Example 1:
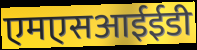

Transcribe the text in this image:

एमएसआईईडी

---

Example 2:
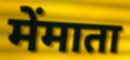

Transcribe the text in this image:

मेंमाता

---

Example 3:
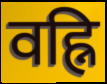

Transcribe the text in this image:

वह्नि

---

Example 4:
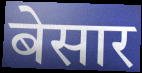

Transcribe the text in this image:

बेसार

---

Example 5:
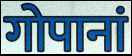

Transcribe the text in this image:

गोपानां